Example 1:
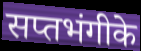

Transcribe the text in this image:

सप्तभंगीके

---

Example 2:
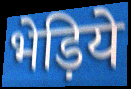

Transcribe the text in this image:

भेड़िये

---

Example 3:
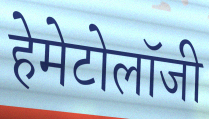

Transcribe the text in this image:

हेमेटोलॉजी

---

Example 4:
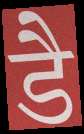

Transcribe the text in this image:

डै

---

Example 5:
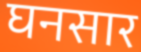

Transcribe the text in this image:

घनसार